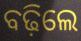
ବଢ଼ିଲେ